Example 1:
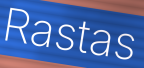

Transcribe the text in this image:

Rastas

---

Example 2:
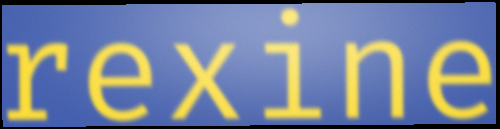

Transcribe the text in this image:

rexine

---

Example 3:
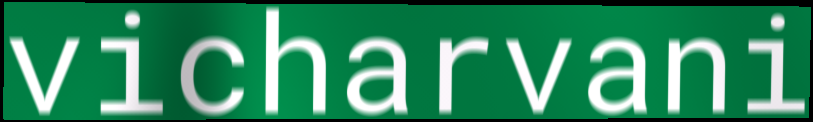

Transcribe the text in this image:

vicharvani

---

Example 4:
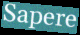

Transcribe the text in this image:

Sapere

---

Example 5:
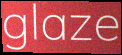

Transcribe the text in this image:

glaze